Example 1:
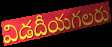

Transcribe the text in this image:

విడదీయగలరు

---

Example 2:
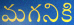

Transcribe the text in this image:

మగనికి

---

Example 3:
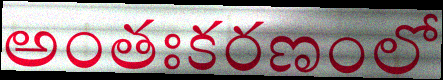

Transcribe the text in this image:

అంతఃకరణంలో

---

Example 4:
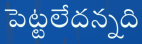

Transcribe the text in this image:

పెట్టలేదన్నది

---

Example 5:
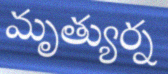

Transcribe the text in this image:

మృత్యుర్న